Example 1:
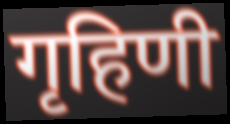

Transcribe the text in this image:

गृहिणी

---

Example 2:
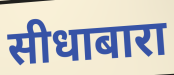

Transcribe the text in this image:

सीधाबारा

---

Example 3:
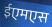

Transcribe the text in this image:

ईएमएस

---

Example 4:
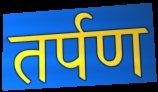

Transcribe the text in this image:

तर्पण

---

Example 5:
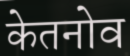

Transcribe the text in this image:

केतनोव